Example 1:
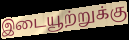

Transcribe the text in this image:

இடையூற்றுக்கு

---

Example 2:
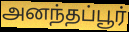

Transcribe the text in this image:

அனந்தப்பூர்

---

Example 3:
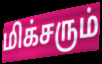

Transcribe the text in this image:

மிக்சரும்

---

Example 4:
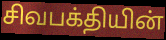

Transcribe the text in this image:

சிவபக்தியின்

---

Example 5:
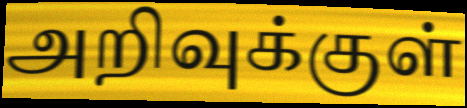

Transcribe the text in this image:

அறிவுக்குள்